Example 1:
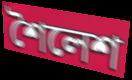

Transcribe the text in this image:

শৈলেশ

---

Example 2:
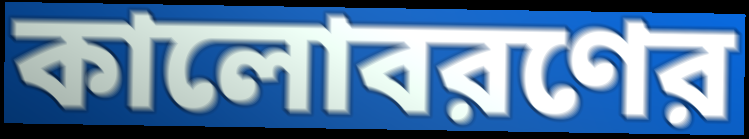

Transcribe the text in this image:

কালোবরণের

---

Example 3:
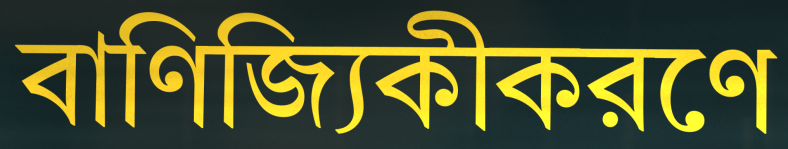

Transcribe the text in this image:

বাণিজ্যিকীকরণে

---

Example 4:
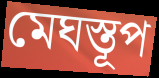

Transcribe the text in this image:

মেঘস্তূপ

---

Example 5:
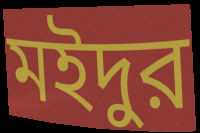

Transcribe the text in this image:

মইদুর